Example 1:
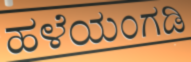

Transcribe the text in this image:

ಹಳೆಯಂಗಡಿ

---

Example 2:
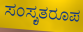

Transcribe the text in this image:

ಸಂಸ್ಕೃತರೂಪ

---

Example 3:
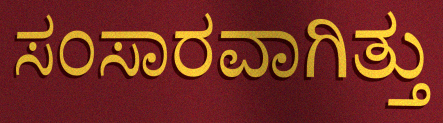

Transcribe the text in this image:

ಸಂಸಾರವಾಗಿತ್ತು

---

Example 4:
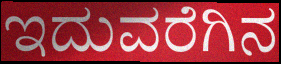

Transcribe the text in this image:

ಇದುವರೆಗಿನ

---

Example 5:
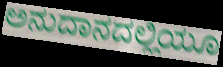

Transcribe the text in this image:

ಅನುದಾನದಲ್ಲಿಯೂ